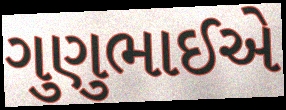
ગુણુભાઈએ